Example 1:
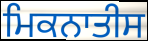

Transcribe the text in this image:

ਮਿਕਨਾਤੀਸ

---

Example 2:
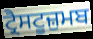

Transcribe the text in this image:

ਟ੍ਰੈਸਟੂਜ਼ੁਮਬ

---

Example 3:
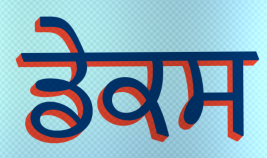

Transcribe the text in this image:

ਡੇਕਸ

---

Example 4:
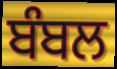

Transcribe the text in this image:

ਬੰਬਲ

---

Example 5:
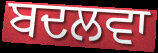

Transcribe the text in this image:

ਬਦਲਵਾ